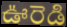
ఊరెడి